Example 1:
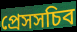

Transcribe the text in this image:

প্রেসসচিব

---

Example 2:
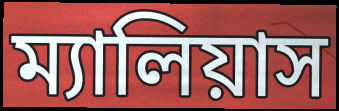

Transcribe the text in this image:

ম্যালিয়াস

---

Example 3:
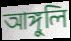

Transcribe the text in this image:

আঙ্গুলি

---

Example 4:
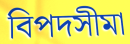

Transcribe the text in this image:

বিপদসীমা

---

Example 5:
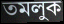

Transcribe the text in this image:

তমলুক